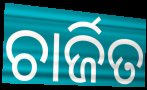
ଚାର୍ଜିତ